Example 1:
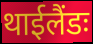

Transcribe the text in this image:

थाईलैंडः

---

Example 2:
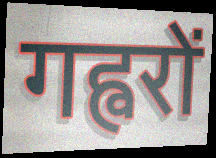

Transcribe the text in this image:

गह्वरों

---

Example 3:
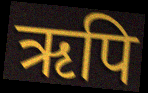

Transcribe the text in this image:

ऋपि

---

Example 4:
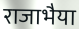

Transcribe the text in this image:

राजाभैया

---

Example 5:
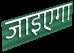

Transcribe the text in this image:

जाइएगा